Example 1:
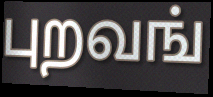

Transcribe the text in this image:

புறவங்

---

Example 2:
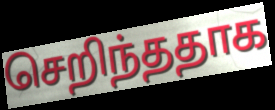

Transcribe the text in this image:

செறிந்ததாக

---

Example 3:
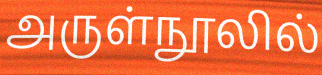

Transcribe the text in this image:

அருள்நூலில்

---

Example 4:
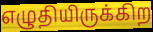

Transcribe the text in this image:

எழுதியிருக்கிற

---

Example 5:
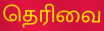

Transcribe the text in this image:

தெரிவை